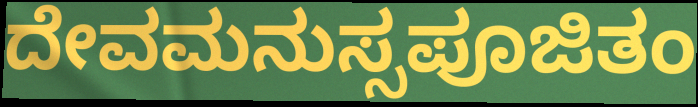
ದೇವಮನುಸ್ಸಪೂಜಿತಂ